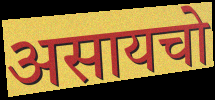
असायचो